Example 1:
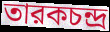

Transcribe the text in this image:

তারকচন্দ্র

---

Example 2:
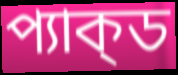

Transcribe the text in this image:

প্যাক্‌ড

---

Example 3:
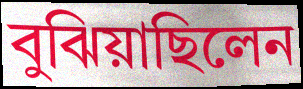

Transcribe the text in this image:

বুঝিয়াছিলেন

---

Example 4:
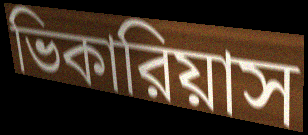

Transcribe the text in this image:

ভিকারিয়াস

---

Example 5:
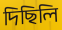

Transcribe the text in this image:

দিছিলি